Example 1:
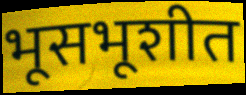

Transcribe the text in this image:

भूसभूशीत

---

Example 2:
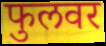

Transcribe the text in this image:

फुलवर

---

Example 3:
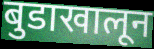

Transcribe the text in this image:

बुडाखालून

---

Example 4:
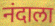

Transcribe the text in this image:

नंदाला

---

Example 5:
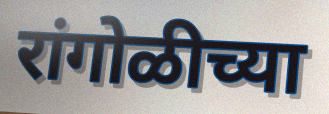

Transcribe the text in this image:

रांगोळीच्या